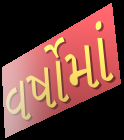
વર્ષોમાં